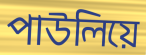
পাউলিয়ে